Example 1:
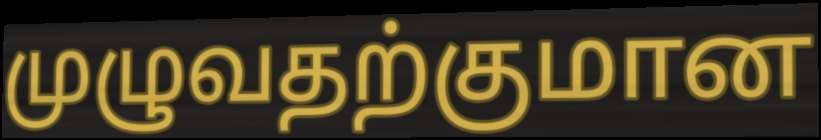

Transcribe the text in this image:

முழுவதற்குமான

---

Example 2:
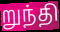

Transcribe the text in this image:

றுந்தி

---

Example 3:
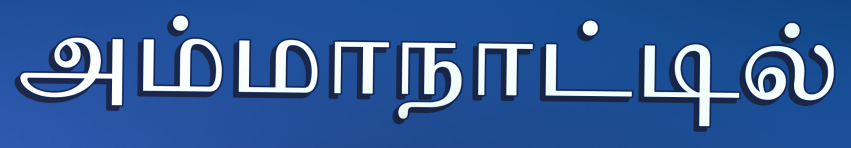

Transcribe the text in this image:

அம்மாநாட்டில்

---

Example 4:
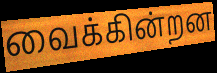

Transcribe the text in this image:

வைக்கின்றன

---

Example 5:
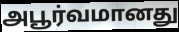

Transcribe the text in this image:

அபூர்வமானது